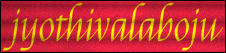
jyothivalaboju